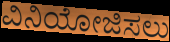
ವಿನಿಯೋಜಿಸಲು